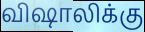
விஷாலிக்கு